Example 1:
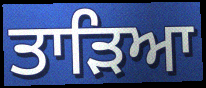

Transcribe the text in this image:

ਤਾੜਿਆ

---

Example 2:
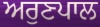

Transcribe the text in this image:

ਅਰੁਣਪਾਲ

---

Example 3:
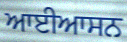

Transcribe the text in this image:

ਆਈਆਸਨ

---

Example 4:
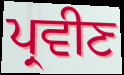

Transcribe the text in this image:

ਪ੍ਰਵੀਣ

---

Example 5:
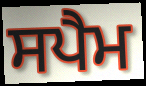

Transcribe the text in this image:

ਸਪੈਮ